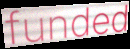
funded